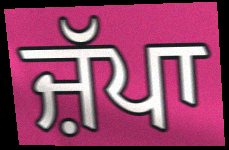
ਜ਼ੱਪਾ